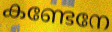
കണ്ടേനേ